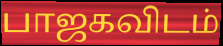
பாஜகவிடம்